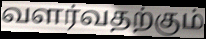
வளர்வதற்கும்